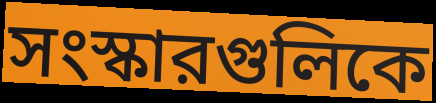
সংস্কারগুলিকে